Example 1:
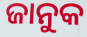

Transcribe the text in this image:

ଜାନୁକ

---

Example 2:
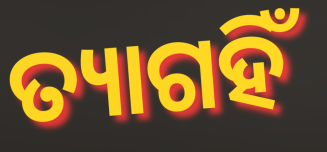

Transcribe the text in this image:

ତ୍ୟାଗହିଁ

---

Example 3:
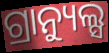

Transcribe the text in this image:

ଗ୍ରାନ୍ୟୁଲ୍ସ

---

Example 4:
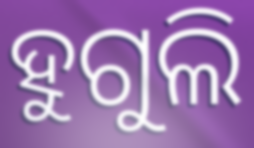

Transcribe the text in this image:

ହୁଗୁଲି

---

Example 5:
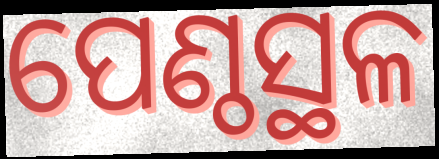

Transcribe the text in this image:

ପେଣ୍ଠସ୍ଥଳ